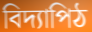
বিদ্যাপিঠ